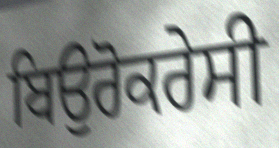
ਬਿਉਰੋਕਰੇਸੀ